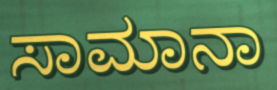
ಸಾಮಾನಾ